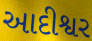
આદીશ્વર